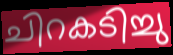
ചിറകടിച്ചു